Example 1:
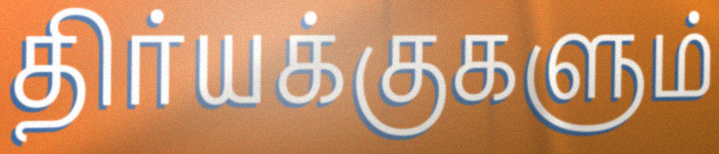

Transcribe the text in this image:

திர்யக்குகளும்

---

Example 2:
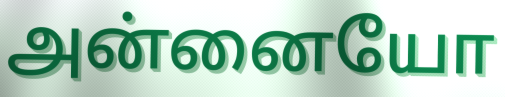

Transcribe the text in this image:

அன்னையோ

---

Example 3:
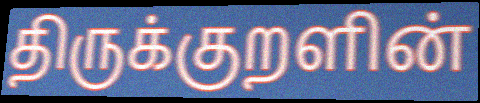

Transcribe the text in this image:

திருக்குறளின்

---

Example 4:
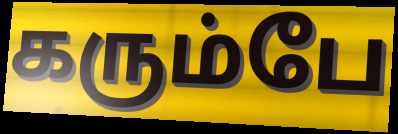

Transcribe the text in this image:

கரும்பே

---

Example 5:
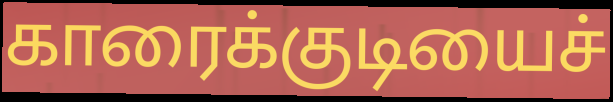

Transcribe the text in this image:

காரைக்குடியைச்